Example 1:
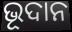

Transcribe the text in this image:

ଭୂଦାନ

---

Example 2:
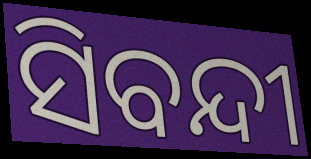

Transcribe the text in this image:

ସିବନ୍ଦୀ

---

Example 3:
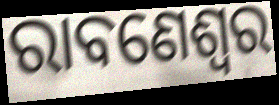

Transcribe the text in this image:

ରାବଣେଶ୍ୱର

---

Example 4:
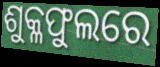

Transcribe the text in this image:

ଶୁକ୍ଳଫୁଲରେ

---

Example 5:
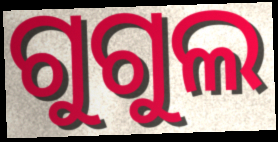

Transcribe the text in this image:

ଗୁଗୁଲ